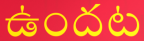
ఉందట